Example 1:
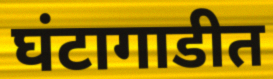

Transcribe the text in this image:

घंटागाडीत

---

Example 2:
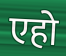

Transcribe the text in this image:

एहो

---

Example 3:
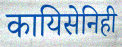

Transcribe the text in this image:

कायिसेनिही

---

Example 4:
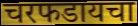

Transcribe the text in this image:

चरफडायचा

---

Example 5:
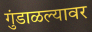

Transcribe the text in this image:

गुंडाळल्यावर